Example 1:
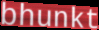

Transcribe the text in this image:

bhunkt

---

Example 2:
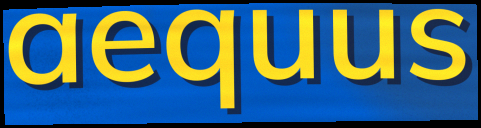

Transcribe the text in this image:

aequus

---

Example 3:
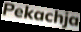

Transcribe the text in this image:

Pekachja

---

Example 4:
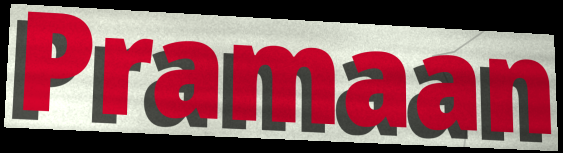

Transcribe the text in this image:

Pramaan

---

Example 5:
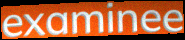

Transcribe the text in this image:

examinee